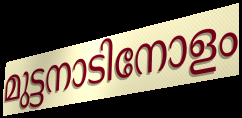
മുട്ടനാടിനോളം